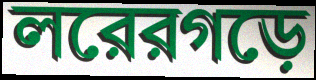
লরেরগড়ে